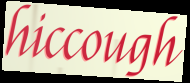
hiccough